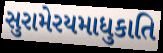
સુરામેરયમાધુકાતિ